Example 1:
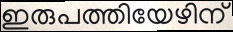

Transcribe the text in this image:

ഇരുപത്തിയേഴിന്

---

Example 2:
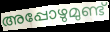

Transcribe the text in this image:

അപ്പോഴുമുണ്ട്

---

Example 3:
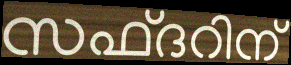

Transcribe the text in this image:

സഫ്ദറിന്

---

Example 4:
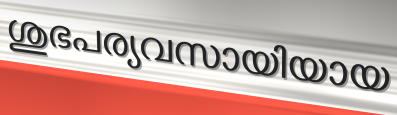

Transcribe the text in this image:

ശുഭപര്യവസായിയായ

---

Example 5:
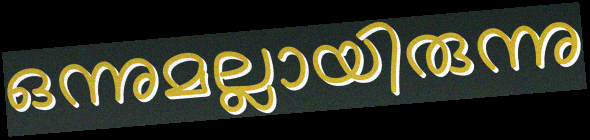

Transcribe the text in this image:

ഒന്നുമല്ലായിരുന്നു